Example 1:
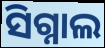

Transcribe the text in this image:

ସିଗ୍ନାଲ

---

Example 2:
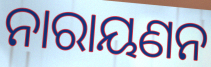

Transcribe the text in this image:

ନାରାୟଣନ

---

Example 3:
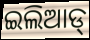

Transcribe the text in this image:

ଇଲିଆଡ୍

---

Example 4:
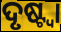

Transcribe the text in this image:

ଦୃଷ୍ଟ୍ବା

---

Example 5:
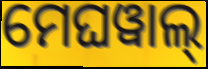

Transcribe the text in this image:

ମେଘୱାଲ୍